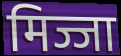
मिज्जा